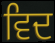
ਵਿਦ